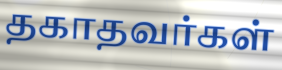
தகாதவர்கள்